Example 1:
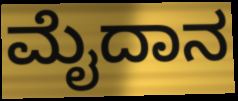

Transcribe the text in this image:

ಮೈದಾನ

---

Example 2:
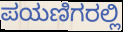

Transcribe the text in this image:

ಪಯಣಿಗರಲ್ಲಿ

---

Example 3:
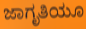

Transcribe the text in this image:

ಜಾಗೃತಿಯೂ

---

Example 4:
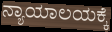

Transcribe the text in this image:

ನ್ಯಾಯಾಲಯಕ್ಕೆ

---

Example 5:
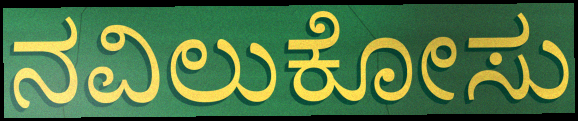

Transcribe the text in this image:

ನವಿಲುಕೋಸು